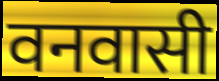
वनवासी